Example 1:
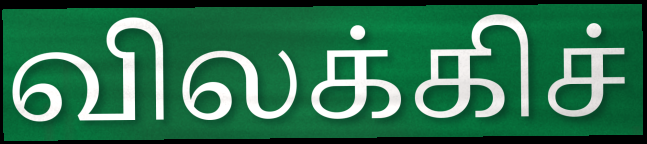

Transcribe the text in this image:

விலக்கிச்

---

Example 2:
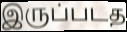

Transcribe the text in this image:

இருப்படத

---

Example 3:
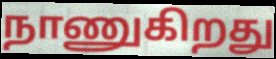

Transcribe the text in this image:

நாணுகிறது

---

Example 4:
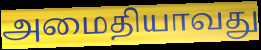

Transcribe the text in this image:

அமைதியாவது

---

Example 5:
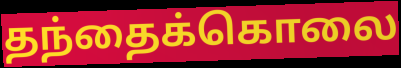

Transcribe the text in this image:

தந்தைக்கொலை